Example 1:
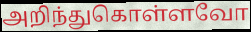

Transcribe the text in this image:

அறிந்துகொள்ளவோ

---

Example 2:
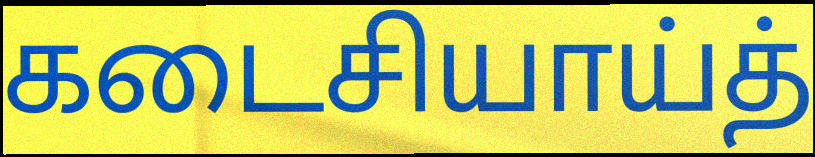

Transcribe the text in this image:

கடைசியாய்த்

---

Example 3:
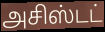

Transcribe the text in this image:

அசிஸ்டட்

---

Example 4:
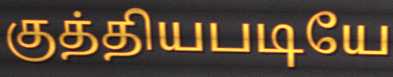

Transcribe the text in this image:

குத்தியபடியே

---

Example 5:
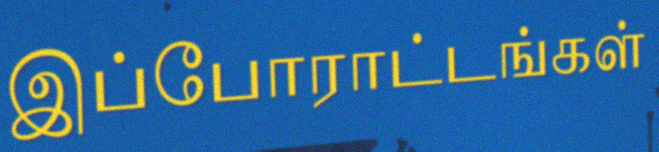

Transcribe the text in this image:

இப்போராட்டங்கள்